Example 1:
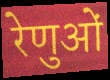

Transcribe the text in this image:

रेणुओं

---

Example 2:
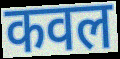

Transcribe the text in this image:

कवल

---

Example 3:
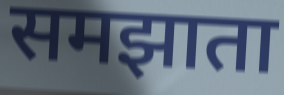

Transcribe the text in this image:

समझाता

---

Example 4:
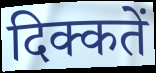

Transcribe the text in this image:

दिक्कतें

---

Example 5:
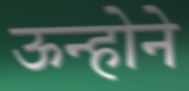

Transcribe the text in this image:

ऊन्होने